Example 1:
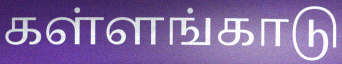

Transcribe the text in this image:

கள்ளங்காடு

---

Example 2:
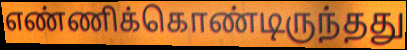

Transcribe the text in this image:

எண்ணிக்கொண்டிருந்தது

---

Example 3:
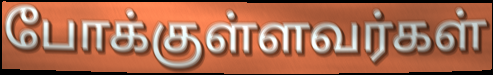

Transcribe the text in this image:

போக்குள்ளவர்கள்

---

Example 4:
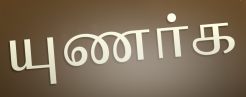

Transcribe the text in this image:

யுணர்க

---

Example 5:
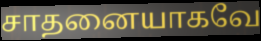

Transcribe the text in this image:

சாதனையாகவே